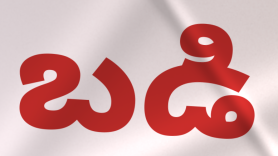
బడి